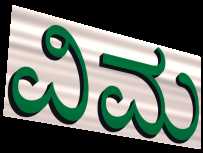
ವಿಮ